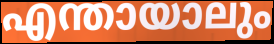
എന്തായാലും